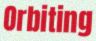
Orbiting